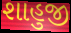
શાહુજી